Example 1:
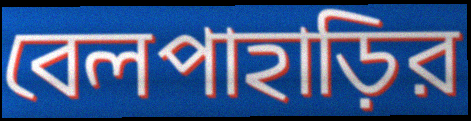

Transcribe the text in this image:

বেলপাহাড়ির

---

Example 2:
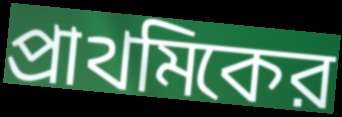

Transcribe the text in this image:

প্রাথমিকের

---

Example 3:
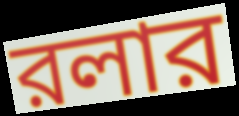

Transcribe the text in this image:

রলার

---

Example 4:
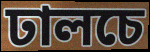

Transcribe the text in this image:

ঢালচে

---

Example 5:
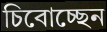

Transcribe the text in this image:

চিবোচ্ছেন